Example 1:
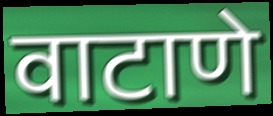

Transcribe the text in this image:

वाटाणे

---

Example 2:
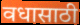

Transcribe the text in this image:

वधासाठी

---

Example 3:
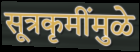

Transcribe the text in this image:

सूत्रकृमींमुळे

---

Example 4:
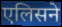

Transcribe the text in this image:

एलिसने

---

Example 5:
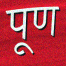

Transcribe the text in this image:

पूण